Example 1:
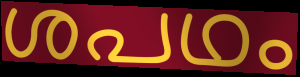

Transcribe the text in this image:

ശപഥം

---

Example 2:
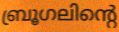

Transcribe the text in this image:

ബ്രൂഗലിന്റെ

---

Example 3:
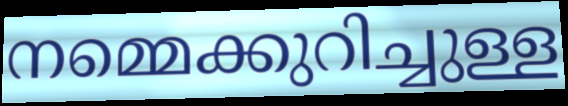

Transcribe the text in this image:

നമ്മെക്കുറിച്ചുള്ള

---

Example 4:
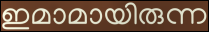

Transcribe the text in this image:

ഇമാമായിരുന്ന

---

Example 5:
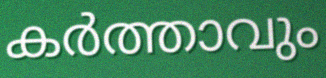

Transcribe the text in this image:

കർത്താവും